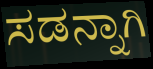
ಸಡನ್ನಾಗಿ